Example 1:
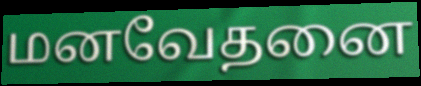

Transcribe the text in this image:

மனவேதனை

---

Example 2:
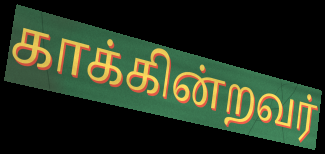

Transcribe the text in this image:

காக்கின்றவர்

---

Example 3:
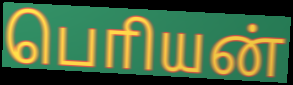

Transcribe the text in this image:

பெரியன்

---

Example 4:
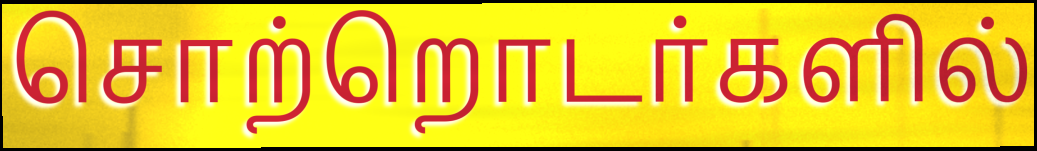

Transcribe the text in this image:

சொற்றொடர்களில்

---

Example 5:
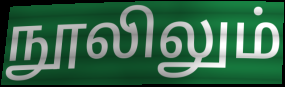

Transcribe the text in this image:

நூலிலும்